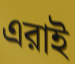
এরাই